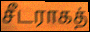
சீடராகத்